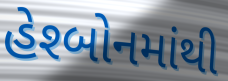
હેશ્બોનમાંથી